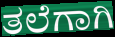
ತಲೆಗಾಗಿ